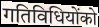
गतिविधियोंको